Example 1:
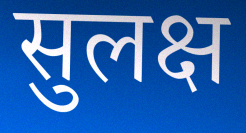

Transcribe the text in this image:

सुलक्ष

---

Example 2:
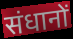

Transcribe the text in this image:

संधानों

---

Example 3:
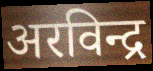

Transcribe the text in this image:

अरविन्द्र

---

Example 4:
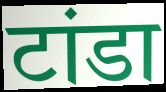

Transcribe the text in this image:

टांडा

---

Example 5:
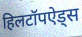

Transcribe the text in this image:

हिलटॉपऐड्स